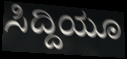
ಸಿದ್ದಿಯೂ